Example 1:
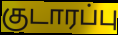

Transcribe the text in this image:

குடாரப்பு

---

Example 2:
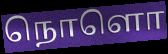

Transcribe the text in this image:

நொளொ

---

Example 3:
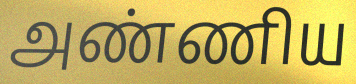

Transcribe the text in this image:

அண்ணிய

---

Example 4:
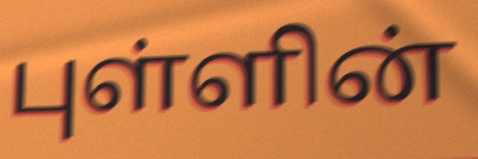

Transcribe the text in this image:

புள்ளின்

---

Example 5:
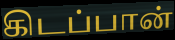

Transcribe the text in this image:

கிடப்பான்